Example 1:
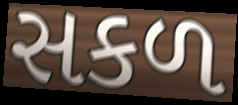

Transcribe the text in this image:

સકળ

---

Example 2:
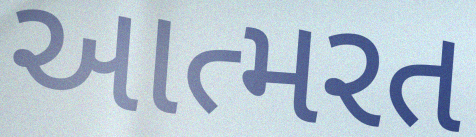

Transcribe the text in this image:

આત્મરત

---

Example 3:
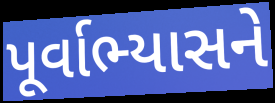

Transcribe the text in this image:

પૂર્વાભ્યાસને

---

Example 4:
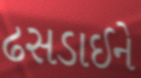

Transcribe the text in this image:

ઢસડાઈને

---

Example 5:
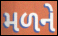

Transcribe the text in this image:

મળને